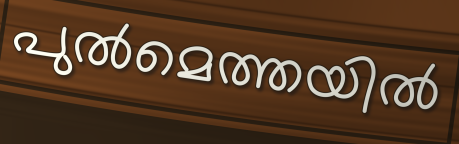
പുൽമെത്തയിൽ